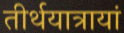
तीर्थयात्रायां